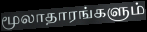
மூலாதாரங்களும்